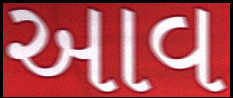
આવ